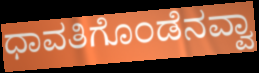
ಧಾವತಿಗೊಂಡೆನವ್ವಾ